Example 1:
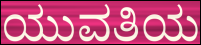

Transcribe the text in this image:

ಯುವತಿಯ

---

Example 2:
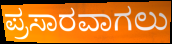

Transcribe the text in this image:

ಪ್ರಸಾರವಾಗಲು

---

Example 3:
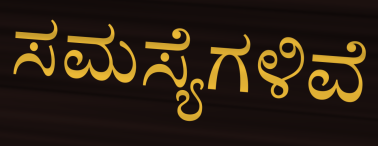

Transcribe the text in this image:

ಸಮಸ್ಯೆಗಳಿವೆ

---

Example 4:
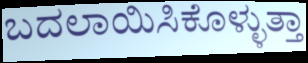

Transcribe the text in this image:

ಬದಲಾಯಿಸಿಕೊಳ್ಳುತ್ತಾ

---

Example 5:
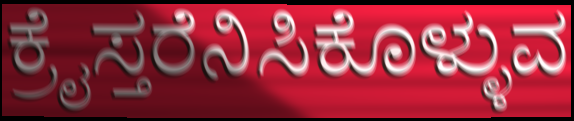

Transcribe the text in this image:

ಕ್ರೈಸ್ತರೆನಿಸಿಕೊಳ್ಳುವ